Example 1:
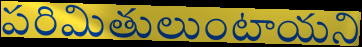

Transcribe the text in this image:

పరిమితులుంటాయని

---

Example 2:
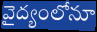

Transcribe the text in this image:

వైద్యంలోనూ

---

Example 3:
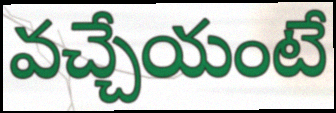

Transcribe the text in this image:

వచ్చేయంటే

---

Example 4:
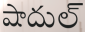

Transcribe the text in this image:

షాదుల్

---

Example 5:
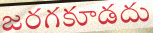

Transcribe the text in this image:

జరగకూడదు